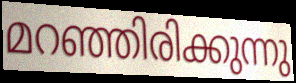
മറഞ്ഞിരിക്കുന്നു